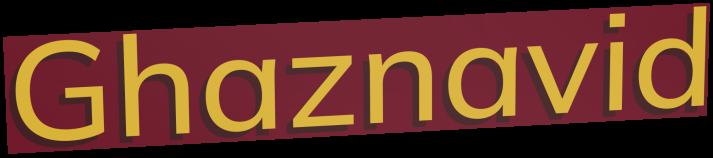
Ghaznavid